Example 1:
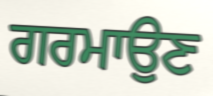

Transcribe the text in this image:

ਗਰਮਾਉਣ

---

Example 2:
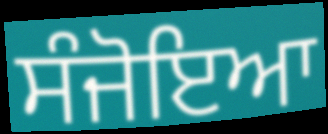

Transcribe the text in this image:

ਸੰਜੋਇਆ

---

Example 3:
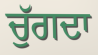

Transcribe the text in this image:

ਚੁੱਗਦਾ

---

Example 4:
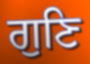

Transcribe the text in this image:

ਗੁਣਿ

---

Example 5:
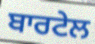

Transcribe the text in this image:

ਬਾਰਟੇਲ